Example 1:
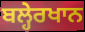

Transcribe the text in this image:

ਬਲ੍ਹੇਰਖਾਨ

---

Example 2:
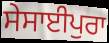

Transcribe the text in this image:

ਸੇਸਾਈਪੁਰਾ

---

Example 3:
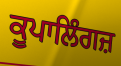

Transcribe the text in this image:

ਕੂਪਾਲਿੰਗਜ਼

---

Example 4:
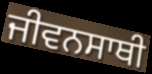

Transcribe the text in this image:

ਜੀਵਨਸਾਥੀ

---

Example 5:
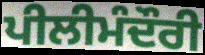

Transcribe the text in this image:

ਪੀਲੀਮੰਦੌਰੀ